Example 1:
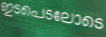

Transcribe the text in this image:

ഇടപെടലോടെ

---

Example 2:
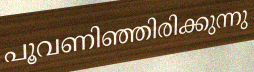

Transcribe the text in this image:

പൂവണിഞ്ഞിരിക്കുന്നു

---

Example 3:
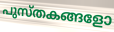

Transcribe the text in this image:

പുസ്തകങ്ങളോ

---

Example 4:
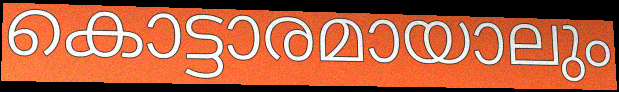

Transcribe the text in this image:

കൊട്ടാരമായാലും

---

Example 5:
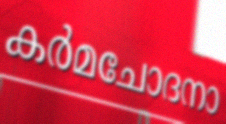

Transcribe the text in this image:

കർമചോദനാ